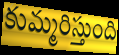
కుమ్మరిస్తుంది